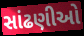
સાંઢણીઓ